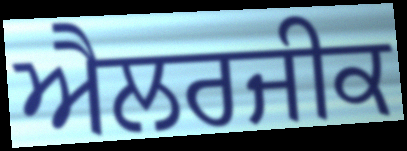
ਐਲਰਜੀਕ